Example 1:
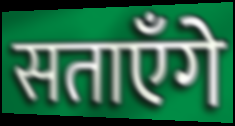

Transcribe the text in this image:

सताएँगे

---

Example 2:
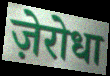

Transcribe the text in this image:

ज़ेरोधा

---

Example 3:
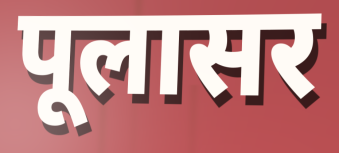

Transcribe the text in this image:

पूलासर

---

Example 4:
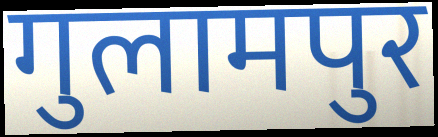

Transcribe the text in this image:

गुलामपुर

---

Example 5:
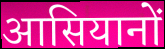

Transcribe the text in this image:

आसियानों